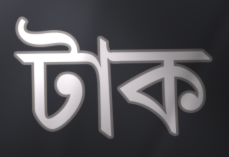
টাক